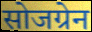
सोजग्रेन